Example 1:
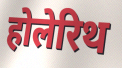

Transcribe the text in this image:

होलेरिथ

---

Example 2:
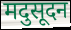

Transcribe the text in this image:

मदुसूदन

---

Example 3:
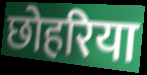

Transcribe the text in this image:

छोहरिया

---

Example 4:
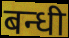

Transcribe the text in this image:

बन्धी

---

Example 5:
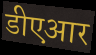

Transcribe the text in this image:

डीएआर